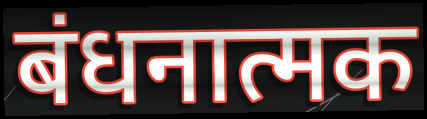
बंधनात्मक